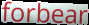
forbear